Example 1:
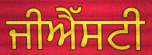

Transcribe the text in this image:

ਜੀਐੱਸਟੀ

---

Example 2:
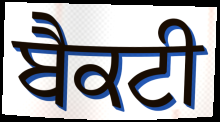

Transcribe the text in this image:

ਬੈਕਟੀ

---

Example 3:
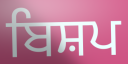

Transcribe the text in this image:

ਬਿਸ਼ਪ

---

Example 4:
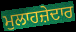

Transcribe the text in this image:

ਮੁਲਾਹਜ਼ੇਦਾਰ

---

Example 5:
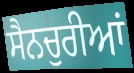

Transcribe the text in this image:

ਸੈਨਚੁਰੀਆਂ